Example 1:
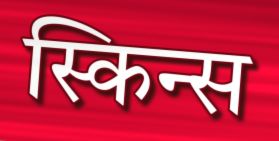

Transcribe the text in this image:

स्किन्स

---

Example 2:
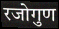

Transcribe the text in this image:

रजोगुण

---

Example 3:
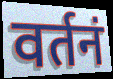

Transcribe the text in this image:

वर्तनं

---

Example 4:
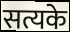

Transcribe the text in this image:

सत्यके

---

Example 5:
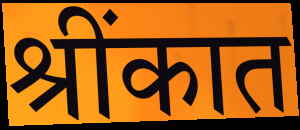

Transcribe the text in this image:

श्रींकात